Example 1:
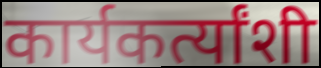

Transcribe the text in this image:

कार्यकर्त्यांशी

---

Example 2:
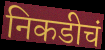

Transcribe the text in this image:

निकडीचं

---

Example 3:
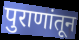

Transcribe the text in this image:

पुराणांतून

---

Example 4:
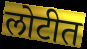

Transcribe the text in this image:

लोटीत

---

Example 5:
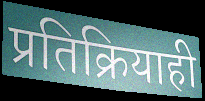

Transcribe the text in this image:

प्रतिक्रियाही